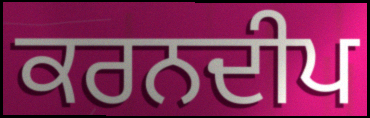
ਕਰਨਦੀਪ